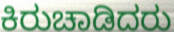
ಕಿರುಚಾಡಿದರು